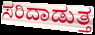
ಸರಿದಾಡುತ್ತ